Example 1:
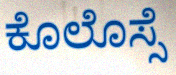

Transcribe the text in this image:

ಕೊಲೊಸ್ಸೆ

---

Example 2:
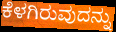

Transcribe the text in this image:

ಕೆಳಗಿರುವುದನ್ನು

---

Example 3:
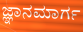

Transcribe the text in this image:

ಜ್ಞಾನಮಾರ್ಗ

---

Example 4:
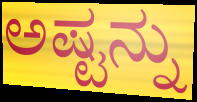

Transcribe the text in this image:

ಅಷ್ಟನ್ನು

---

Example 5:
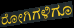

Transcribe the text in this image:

ರೋಗಿಗಳಿಗೂ